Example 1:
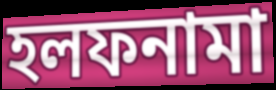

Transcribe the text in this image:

হলফনামা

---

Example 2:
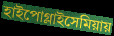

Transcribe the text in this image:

হাইপোগ্লাইসেমিয়ায়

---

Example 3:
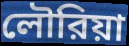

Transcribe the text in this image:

লৌরিয়া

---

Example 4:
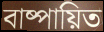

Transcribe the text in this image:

বাষ্পায়িত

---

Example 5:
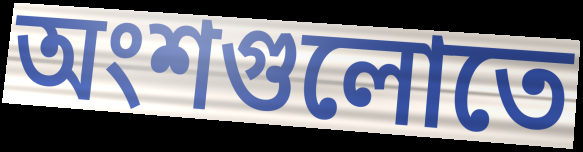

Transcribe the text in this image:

অংশগুলোতে